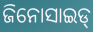
ଜିନୋସାଇଡ୍